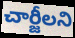
చార్జీలని